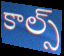
కాల్స్